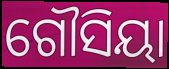
ଗୌସିୟା